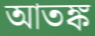
আতঙ্ক